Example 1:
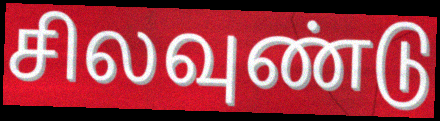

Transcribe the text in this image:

சிலவுண்டு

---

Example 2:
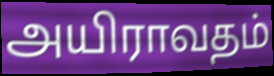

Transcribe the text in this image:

அயிராவதம்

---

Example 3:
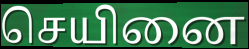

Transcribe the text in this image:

செயினை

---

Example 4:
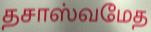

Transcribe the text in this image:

தசாஸ்வமேத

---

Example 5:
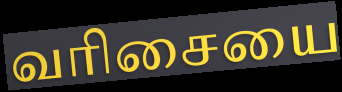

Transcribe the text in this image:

வரிசையை